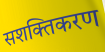
सशक्तिकरण